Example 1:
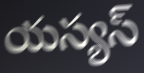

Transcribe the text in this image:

యస్యస్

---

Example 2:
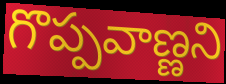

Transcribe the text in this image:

గొప్పవాణ్ణని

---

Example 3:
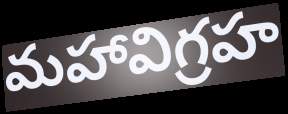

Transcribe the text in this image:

మహావిగ్రహ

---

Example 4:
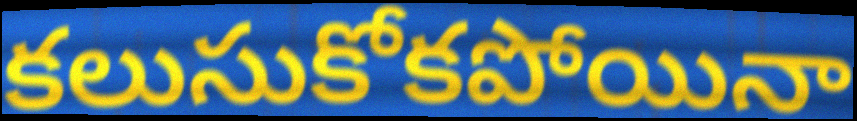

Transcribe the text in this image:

కలుసుకోకపోయినా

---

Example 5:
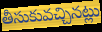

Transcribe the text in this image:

తీసుకువచ్చినట్లు